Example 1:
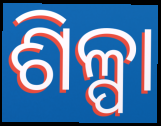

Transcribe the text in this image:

ଶିଳ୍ପା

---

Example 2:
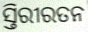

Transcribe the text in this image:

ସ୍ତିରୀରତନ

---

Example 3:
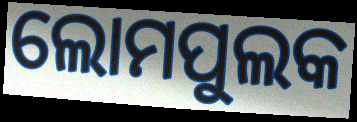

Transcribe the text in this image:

ଲୋମପୁଲକ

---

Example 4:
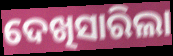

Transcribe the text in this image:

ଦେଖିସାରିଲା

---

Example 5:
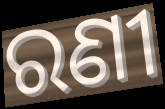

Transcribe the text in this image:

ରଣୀ